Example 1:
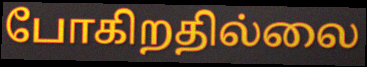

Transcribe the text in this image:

போகிறதில்லை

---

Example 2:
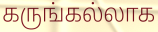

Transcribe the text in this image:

கருங்கல்லாக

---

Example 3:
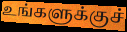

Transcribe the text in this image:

உங்களுக்குச்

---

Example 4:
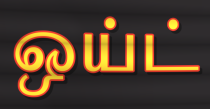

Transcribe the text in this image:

ஒய்ட்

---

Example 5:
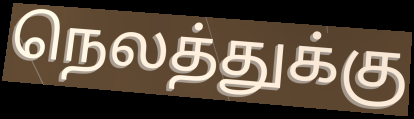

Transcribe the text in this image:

நெலத்துக்கு